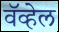
वॅव्हेल